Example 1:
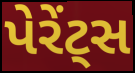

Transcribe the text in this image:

પેરેંટ્સ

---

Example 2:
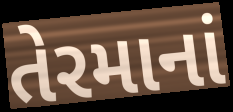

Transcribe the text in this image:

તેરમાનાં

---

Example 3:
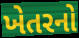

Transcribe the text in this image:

ખેતરનો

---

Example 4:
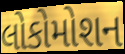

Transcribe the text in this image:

લોકોમોશન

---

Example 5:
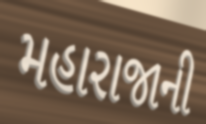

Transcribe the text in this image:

મહારાજાની